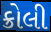
ક્રોલી